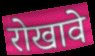
रोखावे